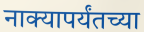
नाक्यापर्यंतच्या